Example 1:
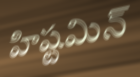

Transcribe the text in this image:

హిష్టమిన్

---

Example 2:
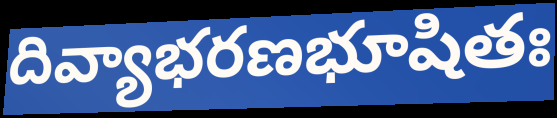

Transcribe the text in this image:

దివ్యాభరణభూషితః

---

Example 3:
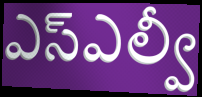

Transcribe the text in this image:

ఎస్ఎల్వీ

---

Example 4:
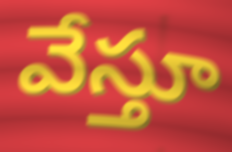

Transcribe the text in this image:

వేస్తూ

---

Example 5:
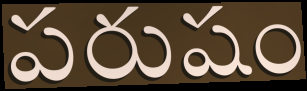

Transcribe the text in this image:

పరుషం